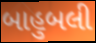
બાહુબલી